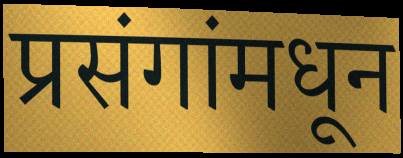
प्रसंगांमधून